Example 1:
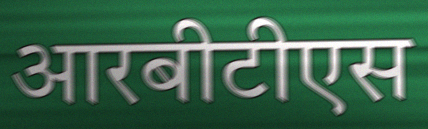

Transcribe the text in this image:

आरबीटीएस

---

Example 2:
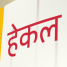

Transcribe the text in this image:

हेकल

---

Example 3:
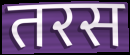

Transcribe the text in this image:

तरस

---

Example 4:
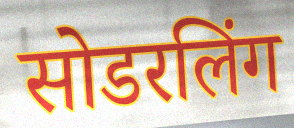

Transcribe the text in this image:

सोडरलिंग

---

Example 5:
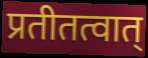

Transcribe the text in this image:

प्रतीतत्वात्